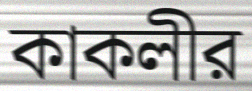
কাকলীর